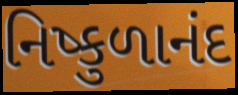
નિષ્કુળાનંદ